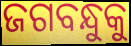
ଜଗବନ୍ଧୁକୁ